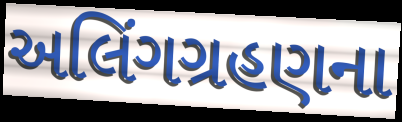
અલિંગગ્રહણના